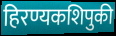
हिरण्यकशिपुकी